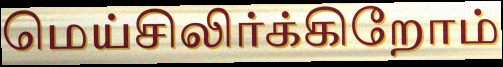
மெய்சிலிர்க்கிறோம்